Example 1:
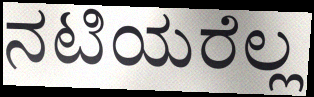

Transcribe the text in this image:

ನಟಿಯರೆಲ್ಲ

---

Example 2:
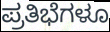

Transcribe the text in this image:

ಪ್ರತಿಭೆಗಳೂ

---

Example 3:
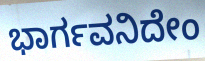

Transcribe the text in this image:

ಭಾರ್ಗವನಿದೇಂ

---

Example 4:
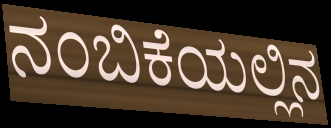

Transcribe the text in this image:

ನಂಬಿಕೆಯಲ್ಲಿನ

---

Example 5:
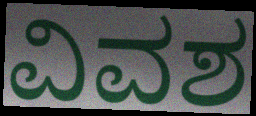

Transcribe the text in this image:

ವಿವಶ